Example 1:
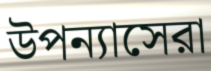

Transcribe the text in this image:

উপন্যাসেরা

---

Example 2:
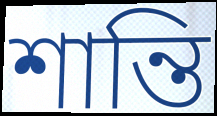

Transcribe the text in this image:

শান্তি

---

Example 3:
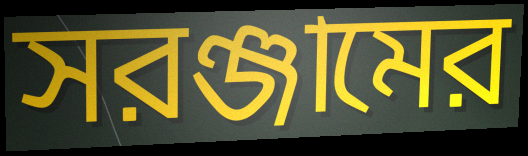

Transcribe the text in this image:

সরঞ্জামের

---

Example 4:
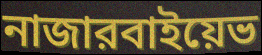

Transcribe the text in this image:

নাজারবাইয়েভ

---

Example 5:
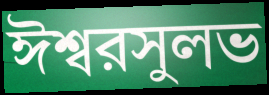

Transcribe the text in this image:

ঈশ্বরসুলভ